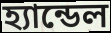
হ্যান্ডেল